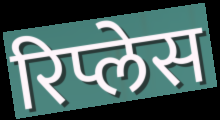
रिप्लेस